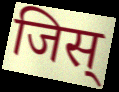
जिस्